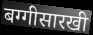
बग्गीसारखी